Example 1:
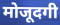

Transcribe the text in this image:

मोजूदगी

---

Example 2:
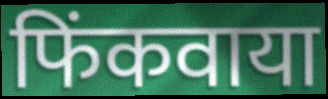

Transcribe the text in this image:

फिंकवाया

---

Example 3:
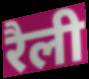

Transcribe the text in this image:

रैली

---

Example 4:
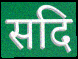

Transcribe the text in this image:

सदि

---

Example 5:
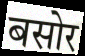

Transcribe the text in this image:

बसोर